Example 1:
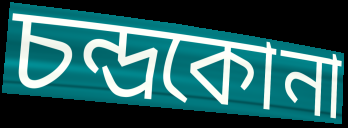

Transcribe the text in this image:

চন্দ্রকোনা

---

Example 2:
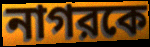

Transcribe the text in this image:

নাগরকে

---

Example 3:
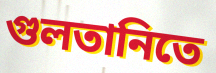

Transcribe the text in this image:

গুলতানিতে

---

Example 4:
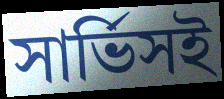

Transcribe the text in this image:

সার্ভিসই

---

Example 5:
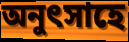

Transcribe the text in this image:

অনুৎসাহে